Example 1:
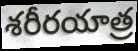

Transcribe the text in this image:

శరీరయాత్ర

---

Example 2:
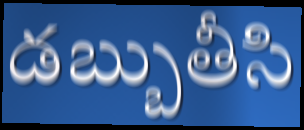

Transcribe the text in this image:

డబ్బుతీసి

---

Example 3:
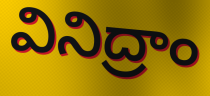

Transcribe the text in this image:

వినిద్రాం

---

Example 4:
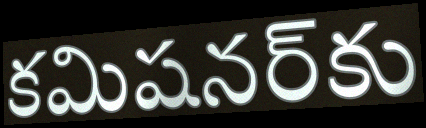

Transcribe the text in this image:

కమిషనర్‌కు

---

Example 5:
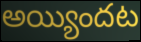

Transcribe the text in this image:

అయ్యిందట